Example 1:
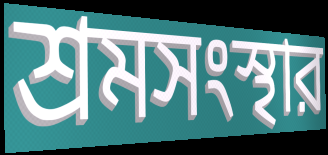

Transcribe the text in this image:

শ্রমসংস্থার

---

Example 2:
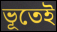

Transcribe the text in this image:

ভূতেই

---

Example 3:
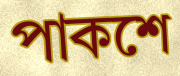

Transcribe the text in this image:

পাকশে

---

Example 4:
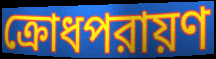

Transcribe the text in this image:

ক্রোধপরায়ণ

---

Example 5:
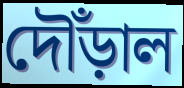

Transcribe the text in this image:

দৌঁড়াল